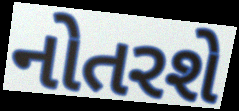
નોતરશે